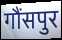
गौंसपुर